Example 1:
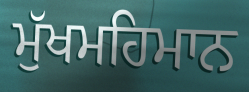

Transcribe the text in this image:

ਮੁੱਖਮਹਿਮਾਨ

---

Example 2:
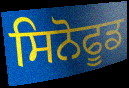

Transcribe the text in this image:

ਸਿਨੋਫੂਡ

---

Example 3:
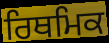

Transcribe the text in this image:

ਰਿਥਮਿਕ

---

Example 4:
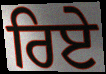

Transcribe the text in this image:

ਰਿਏ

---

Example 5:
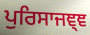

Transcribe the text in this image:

ਪੁਰਿਸਾਜਞ੍ਞ